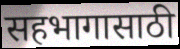
सहभागासाठी